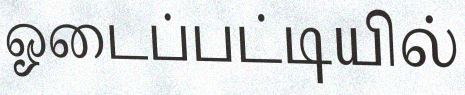
ஓடைப்பட்டியில்